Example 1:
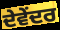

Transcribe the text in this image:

ਦੇਵੇਂਦਰ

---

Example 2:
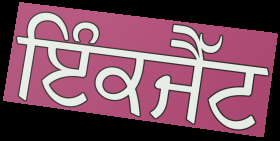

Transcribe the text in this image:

ਇੰਕਜੈੱਟ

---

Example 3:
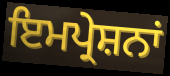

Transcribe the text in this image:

ਇਮਪ੍ਰੇਸ਼ਨਾਂ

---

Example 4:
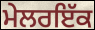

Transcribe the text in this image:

ਮੇਲਰਇੱਕ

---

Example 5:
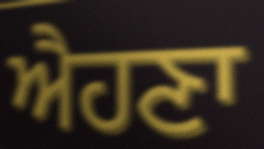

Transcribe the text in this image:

ਐਹਣਾ